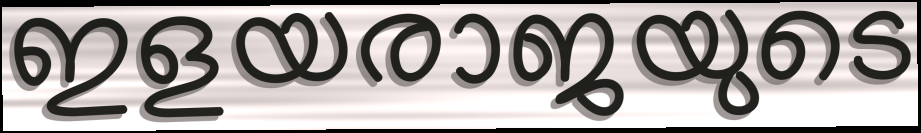
ഇളയരാജയുടെ